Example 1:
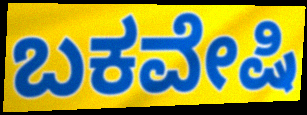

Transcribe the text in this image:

ಬಕವೇಷಿ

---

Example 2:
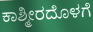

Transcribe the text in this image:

ಕಾಶ್ಮೀರದೊಳಗೆ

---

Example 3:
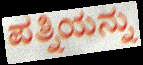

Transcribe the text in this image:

ಪತ್ನಿಯನ್ನು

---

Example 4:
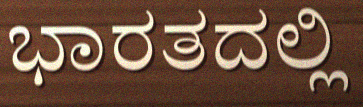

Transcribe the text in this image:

ಭಾರತದಲ್ಲಿ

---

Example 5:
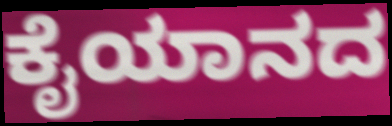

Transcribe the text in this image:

ಕೈಯಾನದ